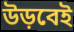
উড়বেই